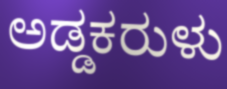
ಅಡ್ಡಕರುಳು